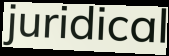
juridical